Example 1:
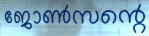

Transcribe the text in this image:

ജോൺസന്റെ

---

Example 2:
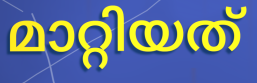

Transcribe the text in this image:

മാറ്റിയത്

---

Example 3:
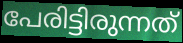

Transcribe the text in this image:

പേരിട്ടിരുന്നത്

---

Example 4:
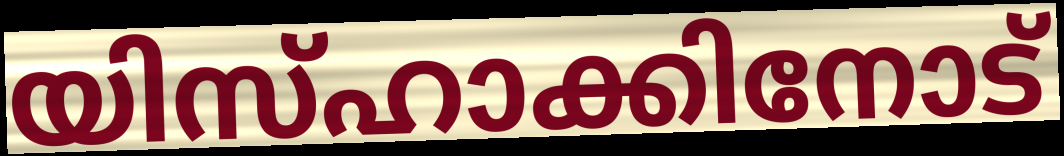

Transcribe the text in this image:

യിസ്ഹാക്കിനോട്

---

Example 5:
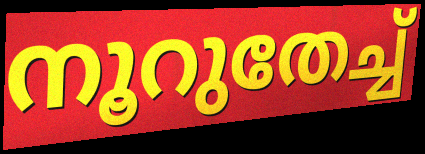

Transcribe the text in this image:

നൂറുതേച്ച്